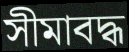
সীমাবদ্ধ